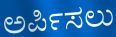
ಅರ್ಪಿಸಲು